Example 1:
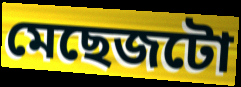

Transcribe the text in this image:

মেছেজটো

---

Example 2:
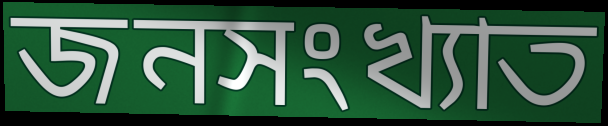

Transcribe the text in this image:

জনসংখ্যাত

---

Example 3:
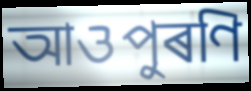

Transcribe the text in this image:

আওপুৰণি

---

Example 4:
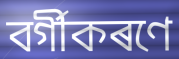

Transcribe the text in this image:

বৰ্গীকৰণে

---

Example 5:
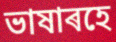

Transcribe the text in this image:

ভাষাৰহে